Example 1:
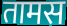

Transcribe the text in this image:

तामस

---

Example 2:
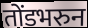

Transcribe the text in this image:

तोंडभरुन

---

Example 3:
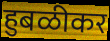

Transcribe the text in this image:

हुबळीकर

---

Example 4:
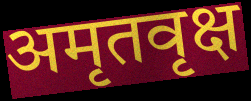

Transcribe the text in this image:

अमृतवृक्ष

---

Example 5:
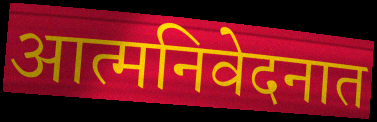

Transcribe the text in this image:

आत्मनिवेदनात